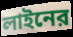
লাইনের